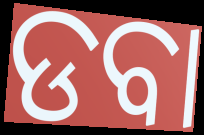
ଡବା